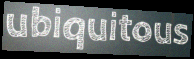
ubiquitous